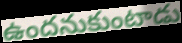
ఉందనుకుంటాడు